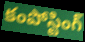
కంపోస్టింగ్